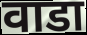
वाडा